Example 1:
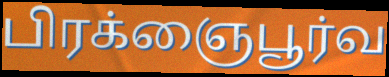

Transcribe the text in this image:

பிரக்ஞைபூர்வ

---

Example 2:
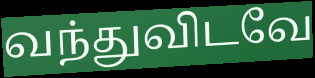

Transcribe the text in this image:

வந்துவிடவே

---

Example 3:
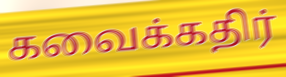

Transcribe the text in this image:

கவைக்கதிர்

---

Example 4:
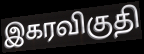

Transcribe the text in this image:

இகரவிகுதி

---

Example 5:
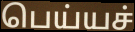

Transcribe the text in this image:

பெய்யச்